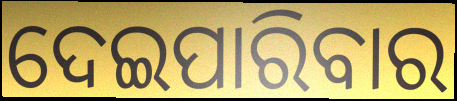
ଦେଇପାରିବାର